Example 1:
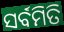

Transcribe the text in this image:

ସର୍ବମିତି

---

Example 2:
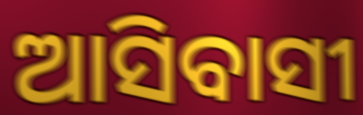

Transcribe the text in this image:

ଆସିବାସୀ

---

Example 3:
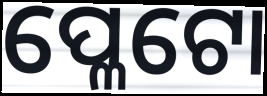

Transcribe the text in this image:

ପ୍ଳେଟୋ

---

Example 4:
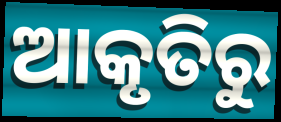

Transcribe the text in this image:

ଆକୃତିରୁ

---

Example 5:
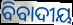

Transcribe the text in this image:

ବିବାଦୀୟ